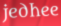
jedhee